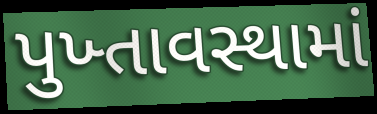
પુખ્તાવસ્થામાં